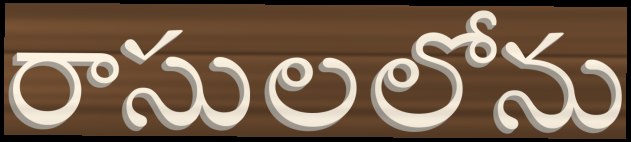
రాసులలోను